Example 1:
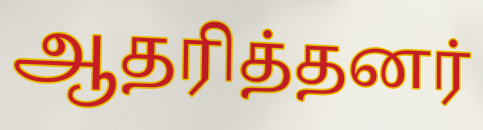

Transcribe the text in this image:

ஆதரித்தனர்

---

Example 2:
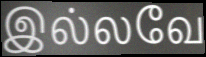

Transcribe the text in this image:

இல்லவே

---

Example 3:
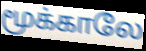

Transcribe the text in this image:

மூக்காலே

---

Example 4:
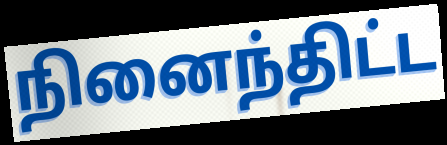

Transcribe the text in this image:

நினைந்திட்ட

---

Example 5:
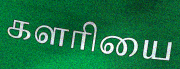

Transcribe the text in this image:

களரியை